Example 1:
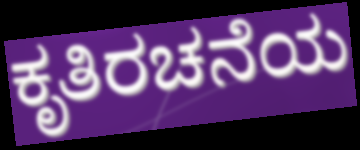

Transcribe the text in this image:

ಕೃತಿರಚನೆಯ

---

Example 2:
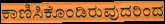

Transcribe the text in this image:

ಕಾಣಿಸಿಕೊಂಡಿರುವುದರಿಂದ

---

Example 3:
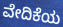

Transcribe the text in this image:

ವೇದಿಕೆಯ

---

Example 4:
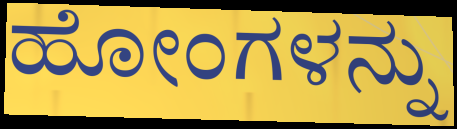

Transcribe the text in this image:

ಹೋಂಗಳನ್ನು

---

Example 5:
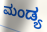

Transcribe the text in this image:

ಮಂಡ್ಯ